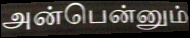
அன்பென்னும்